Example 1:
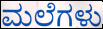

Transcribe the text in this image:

ಮಲೆಗಳು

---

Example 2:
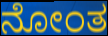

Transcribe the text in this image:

ನೋಂತ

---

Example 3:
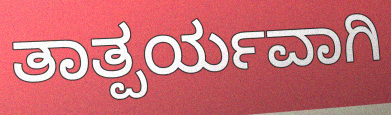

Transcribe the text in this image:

ತಾತ್ಪರ್ಯವಾಗಿ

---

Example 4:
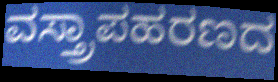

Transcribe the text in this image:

ವಸ್ತ್ರಾಪಹರಣದ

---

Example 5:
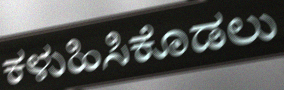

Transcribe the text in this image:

ಕಳುಹಿಸಿಕೊಡಲು